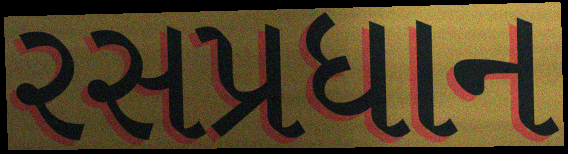
રસપ્રધાન